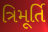
ત્રિમૂર્તિ